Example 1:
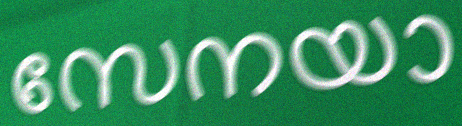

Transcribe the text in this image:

സേനയാ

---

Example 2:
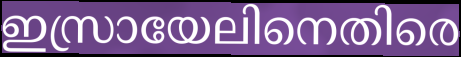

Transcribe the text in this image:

ഇസ്രായേലിനെതിരെ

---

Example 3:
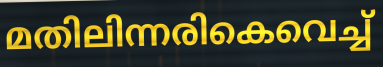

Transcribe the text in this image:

മതിലിന്നരികെവെച്ച്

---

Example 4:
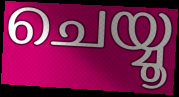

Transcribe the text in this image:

ചെയ്യൂ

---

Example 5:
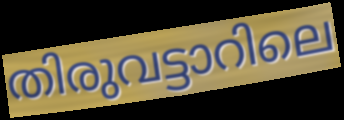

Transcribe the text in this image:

തിരുവട്ടാറിലെ